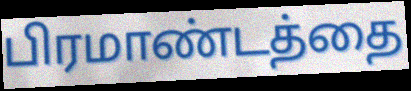
பிரமாண்டத்தை